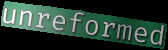
unreformed